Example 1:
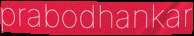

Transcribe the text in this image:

prabodhankar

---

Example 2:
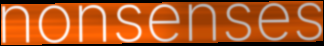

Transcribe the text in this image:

nonsenses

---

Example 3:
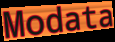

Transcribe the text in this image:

Modata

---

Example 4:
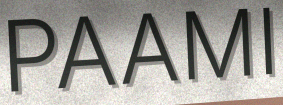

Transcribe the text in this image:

PAAMI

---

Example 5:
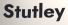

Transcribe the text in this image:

Stutley